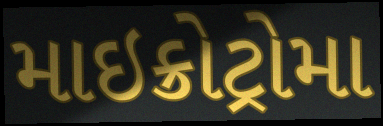
માઇક્રોટ્રોમા